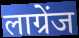
लाग्रेंज